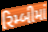
રિમ્બીમાં